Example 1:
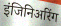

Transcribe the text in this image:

इंजिनिअरिंग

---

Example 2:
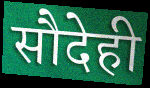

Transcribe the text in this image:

सौदेही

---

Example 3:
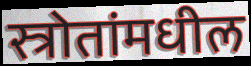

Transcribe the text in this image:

स्त्रोतांमधील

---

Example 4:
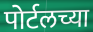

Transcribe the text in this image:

पोर्टलच्या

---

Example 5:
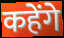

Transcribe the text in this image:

कहेंगे